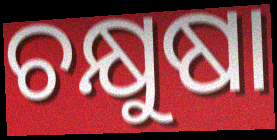
ଚକ୍ଷୁଷା